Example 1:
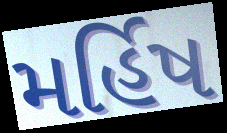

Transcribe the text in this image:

મર્હિષ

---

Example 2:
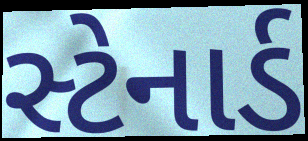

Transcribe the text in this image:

સ્ટેનાર્ડ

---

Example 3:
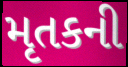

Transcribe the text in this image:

મૃતકની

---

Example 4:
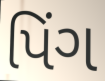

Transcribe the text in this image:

પિંગ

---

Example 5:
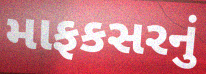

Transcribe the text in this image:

માફકસરનું